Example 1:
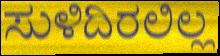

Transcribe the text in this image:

ಸುಳಿದಿರಲಿಲ್ಲ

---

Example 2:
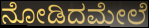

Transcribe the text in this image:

ನೋಡಿದಮೇಲೆ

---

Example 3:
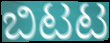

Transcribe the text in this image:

ಬಿಟಟ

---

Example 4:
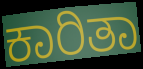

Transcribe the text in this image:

ಕಾರಿತಾ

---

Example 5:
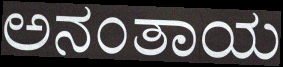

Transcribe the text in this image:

ಅನಂತಾಯ